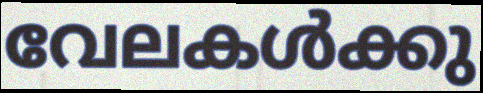
വേലകൾക്കു